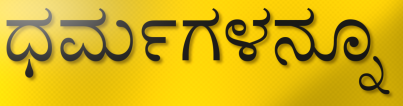
ಧರ್ಮಗಳನ್ನೂ